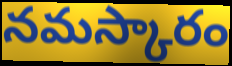
నమస్కారం